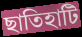
ছাতিহাটি